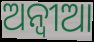
ଅନ୍ବୀଆ